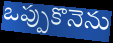
ఒప్పుకొనెను